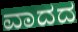
ವಾದದ